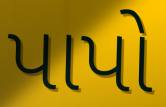
પાપો